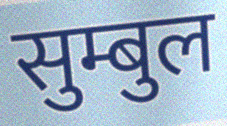
सुम्बुल